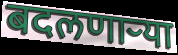
बदलणाऱ्या